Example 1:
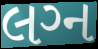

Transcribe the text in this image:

લગ્‍ન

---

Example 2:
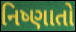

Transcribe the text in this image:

નિષ્ણાતો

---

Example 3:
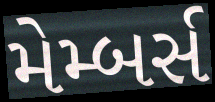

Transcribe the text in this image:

મેમ્બર્સ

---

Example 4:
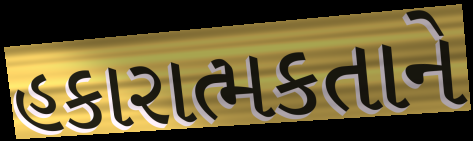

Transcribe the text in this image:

હકારાત્મકતાને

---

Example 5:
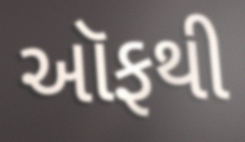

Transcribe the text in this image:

ઑફથી